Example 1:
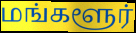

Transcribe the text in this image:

மங்களூர்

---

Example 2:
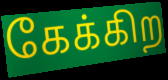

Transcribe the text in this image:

கேக்கிற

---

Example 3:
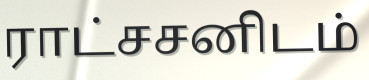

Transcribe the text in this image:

ராட்சசனிடம்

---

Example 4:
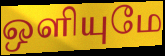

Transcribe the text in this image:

ஒளியுமே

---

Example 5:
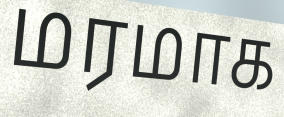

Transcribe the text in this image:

மரமாக